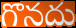
గొనదు